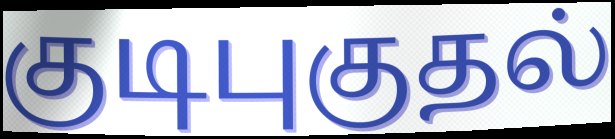
குடிபுகுதல்